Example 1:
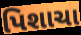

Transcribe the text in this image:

પિશાચા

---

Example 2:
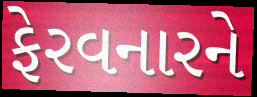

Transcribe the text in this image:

ફેરવનારને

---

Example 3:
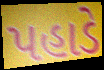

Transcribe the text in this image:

પહાડે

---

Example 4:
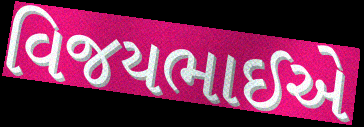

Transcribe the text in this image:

વિજયભાઈએ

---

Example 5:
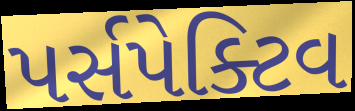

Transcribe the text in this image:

પર્સપેક્ટિવ